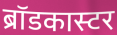
ब्रॉडकास्टर